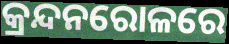
କ୍ରନ୍ଦନରୋଳରେ